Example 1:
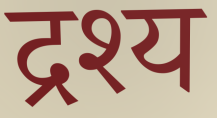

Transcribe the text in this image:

द्रश्य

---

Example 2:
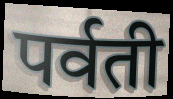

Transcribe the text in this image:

पर्वती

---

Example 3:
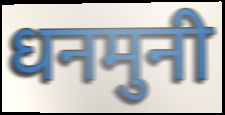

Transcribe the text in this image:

धनमुनी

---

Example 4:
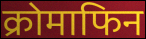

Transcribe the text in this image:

क्रोमाफिन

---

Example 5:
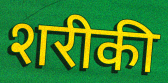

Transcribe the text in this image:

शरीकी